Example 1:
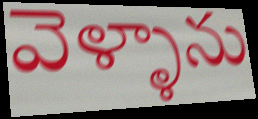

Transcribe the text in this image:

వెళ్ళాను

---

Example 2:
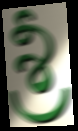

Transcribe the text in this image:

శ్రీ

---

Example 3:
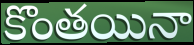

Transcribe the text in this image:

కొంతయినా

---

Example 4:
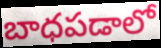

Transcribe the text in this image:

బాధపడాలో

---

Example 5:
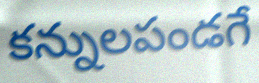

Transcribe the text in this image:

కన్నులపండగే